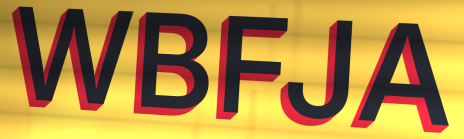
WBFJA